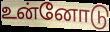
உன்னோடு